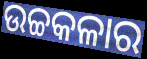
ଉଚ୍ଚକଳାର